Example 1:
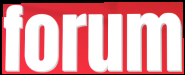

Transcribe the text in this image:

forum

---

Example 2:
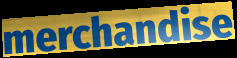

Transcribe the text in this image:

merchandise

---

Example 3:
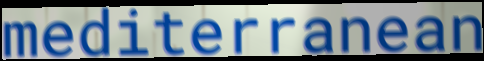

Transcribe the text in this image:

mediterranean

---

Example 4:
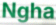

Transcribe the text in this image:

Ngha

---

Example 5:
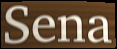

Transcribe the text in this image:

Sena